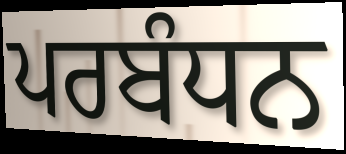
ਪਰਬੰਧਨ